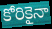
కోరికైనా